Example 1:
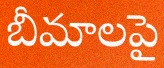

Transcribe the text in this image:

బీమాలపై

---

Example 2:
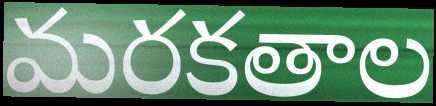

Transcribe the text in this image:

మరకతాల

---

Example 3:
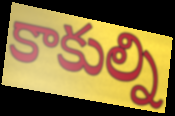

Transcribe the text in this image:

కాకుల్ని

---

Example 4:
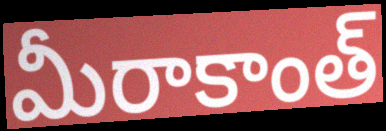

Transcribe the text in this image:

మీరాకాంత్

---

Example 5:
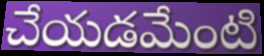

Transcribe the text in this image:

చేయడమేంటి